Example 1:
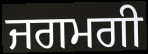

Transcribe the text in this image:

ਜਗਮਗੀ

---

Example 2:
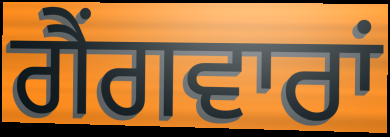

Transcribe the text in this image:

ਗੈਂਗਵਾਰਾਂ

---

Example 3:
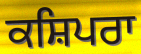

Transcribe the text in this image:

ਕਸ਼ਿਪਰਾ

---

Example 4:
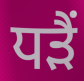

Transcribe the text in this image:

ਧੜੈਂ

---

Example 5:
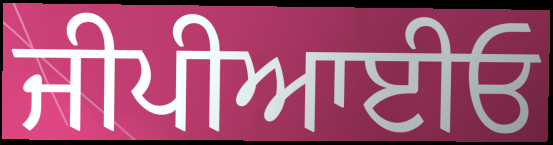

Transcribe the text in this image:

ਜੀਪੀਆਈਓ